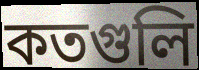
কতগুলি